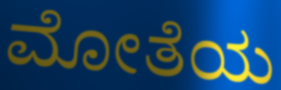
ಮೋತೆಯ